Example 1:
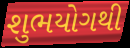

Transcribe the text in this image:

શુભયોગથી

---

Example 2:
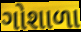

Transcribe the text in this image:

ગોશાળા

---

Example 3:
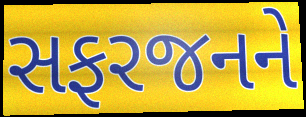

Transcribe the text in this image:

સફરજનને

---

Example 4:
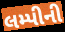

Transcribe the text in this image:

લમ્પીની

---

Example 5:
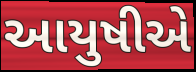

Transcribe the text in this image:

આયુષીએ